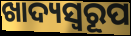
ଖାଦ୍ୟସ୍ୱରୂପ